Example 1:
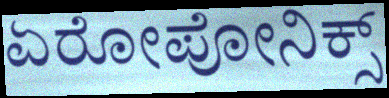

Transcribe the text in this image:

ಏರೋಪೋನಿಕ್ಸ್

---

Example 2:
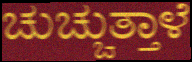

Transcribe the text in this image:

ಚುಚ್ಚುತ್ತಾಳೆ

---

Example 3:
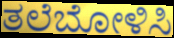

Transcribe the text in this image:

ತಲೆಬೋಳಿಸಿ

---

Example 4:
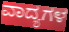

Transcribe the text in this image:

ವಾದ್ಯಗಳ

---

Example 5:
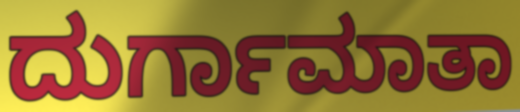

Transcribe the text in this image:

ದುರ್ಗಾಮಾತಾ